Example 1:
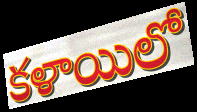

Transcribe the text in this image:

కళాయిలో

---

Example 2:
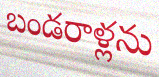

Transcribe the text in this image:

బండరాళ్లను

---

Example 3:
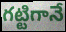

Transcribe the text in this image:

గట్టిగానే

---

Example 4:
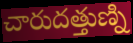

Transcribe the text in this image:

చారుదత్తుణ్ని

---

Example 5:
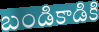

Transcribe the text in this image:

బండికాడికి